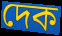
দেক